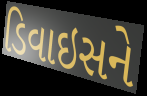
ડિવાઇસને